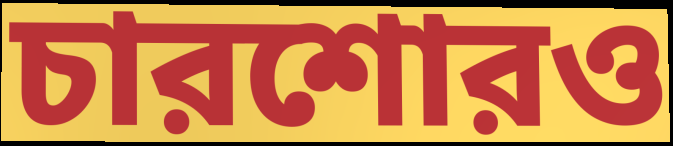
চারশোরও